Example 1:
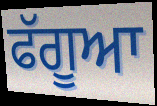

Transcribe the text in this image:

ਫੱਗੂਆ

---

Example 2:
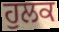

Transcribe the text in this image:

ਹੁਲਕ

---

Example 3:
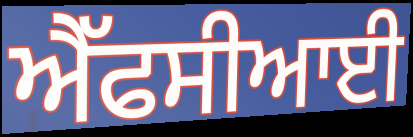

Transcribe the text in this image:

ਐੱਫਸੀਆਈ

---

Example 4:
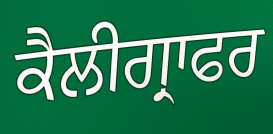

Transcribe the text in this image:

ਕੈਲੀਗ੍ਰਾਫਰ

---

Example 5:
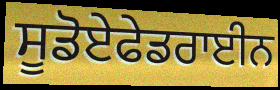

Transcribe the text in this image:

ਸੂਡੋਏਫੇਡਰਾਈਨ